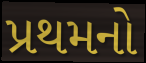
પ્રથમનો